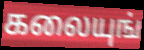
கலையுங்